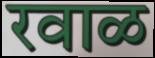
रवाळ